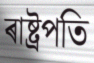
ৰাষ্ট্ৰপতি